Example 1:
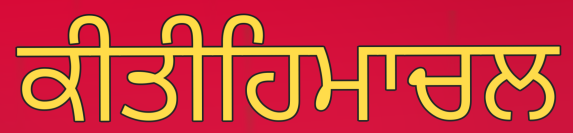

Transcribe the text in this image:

ਕੀਤੀਹਿਮਾਚਲ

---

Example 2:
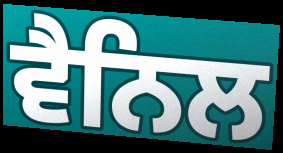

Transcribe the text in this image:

ਵੈਨਿਲ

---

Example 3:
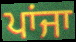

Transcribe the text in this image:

ਪਾਂਜਾ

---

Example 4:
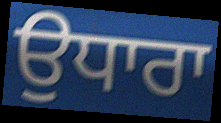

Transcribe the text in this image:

ਉਧਾਰਾ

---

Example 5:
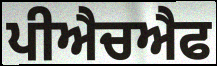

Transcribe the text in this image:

ਪੀਐਚਐਫ